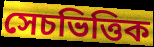
সেচভিত্তিক